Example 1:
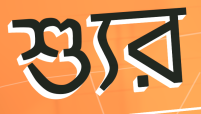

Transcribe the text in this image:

শ্যুর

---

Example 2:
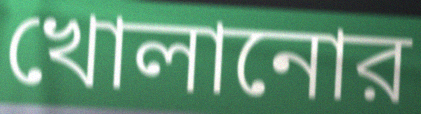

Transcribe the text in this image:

খোলানোর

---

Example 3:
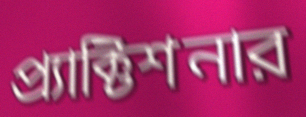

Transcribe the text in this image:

প্র্যাক্টিশনার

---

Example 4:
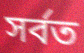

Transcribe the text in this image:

সর্বত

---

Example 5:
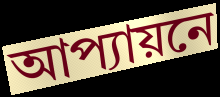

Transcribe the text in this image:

আপ্যায়নে